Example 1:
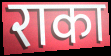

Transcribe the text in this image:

राका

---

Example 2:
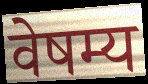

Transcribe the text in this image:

वेषम्य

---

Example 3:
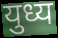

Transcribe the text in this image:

युध्य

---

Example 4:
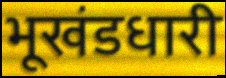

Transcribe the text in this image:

भूखंडधारी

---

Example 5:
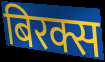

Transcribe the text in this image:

बिरक्स